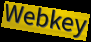
Webkey